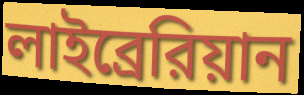
লাইব্রেরিয়ান